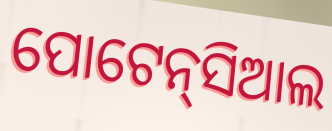
ପୋଟେନ୍‌ସିଆଲ